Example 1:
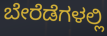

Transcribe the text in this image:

ಬೇರೆಡೆಗಳಲ್ಲಿ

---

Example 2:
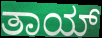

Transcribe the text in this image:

ತಾಯ್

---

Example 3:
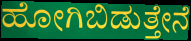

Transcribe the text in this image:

ಹೋಗಿಬಿಡುತ್ತೇನೆ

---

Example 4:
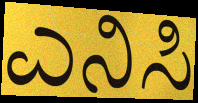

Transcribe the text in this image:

ಎನಿಸಿ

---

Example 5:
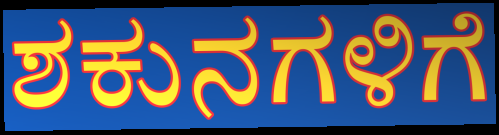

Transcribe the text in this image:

ಶಕುನಗಳಿಗೆ